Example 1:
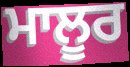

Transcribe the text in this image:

ਮਾਲੂਰ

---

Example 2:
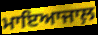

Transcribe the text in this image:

ਮਾਇਆਜਾਲ਼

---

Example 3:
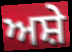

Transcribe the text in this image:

ਅਸ਼ੇ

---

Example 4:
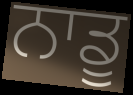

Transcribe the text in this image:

ਨਾਡੂ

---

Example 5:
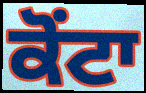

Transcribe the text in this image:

ਕੋਂਟਾ